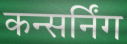
कन्सर्निंग